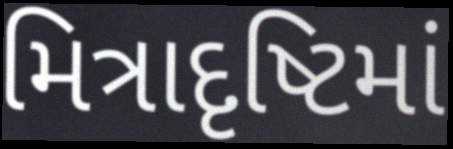
મિત્રાદૃષ્ટિમાં